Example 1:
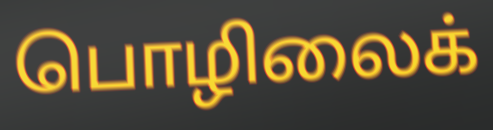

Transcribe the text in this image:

பொழிலைக்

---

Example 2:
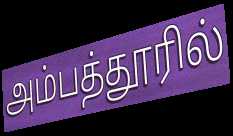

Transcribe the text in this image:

அம்பத்தூரில்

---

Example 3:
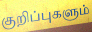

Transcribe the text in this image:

குறிப்புகளும்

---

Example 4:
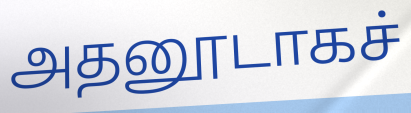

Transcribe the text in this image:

அதனூடாகச்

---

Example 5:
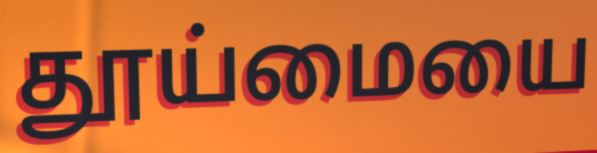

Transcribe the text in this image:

தூய்மையை